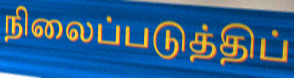
நிலைப்படுத்திப்